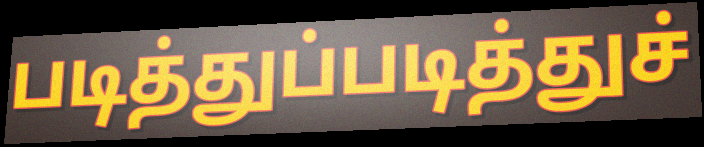
படித்துப்படித்துச்